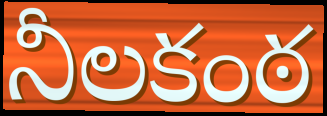
నీలకంఠ